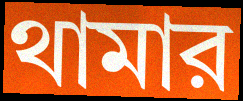
থামার